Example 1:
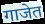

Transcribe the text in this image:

गाजेत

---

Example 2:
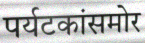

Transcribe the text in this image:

पर्यटकांसमोर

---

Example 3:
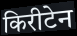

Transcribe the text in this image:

किरीटेन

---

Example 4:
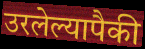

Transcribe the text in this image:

उरलेल्यापैकी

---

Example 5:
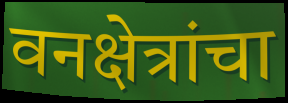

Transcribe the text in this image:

वनक्षेत्रांचा